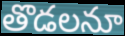
తొడలనూ